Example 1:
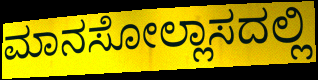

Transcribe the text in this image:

ಮಾನಸೋಲ್ಲಾಸದಲ್ಲಿ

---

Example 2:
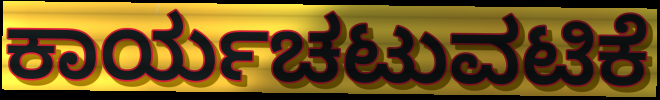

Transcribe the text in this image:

ಕಾರ್ಯಚಟುವಟಿಕೆ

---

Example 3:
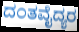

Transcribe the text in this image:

ದಂತವೈದ್ಯರ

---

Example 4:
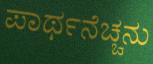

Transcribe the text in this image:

ಪಾರ್ಥನೆಚ್ಚನು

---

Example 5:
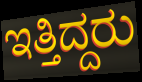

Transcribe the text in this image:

ಇತ್ತಿದ್ದರು